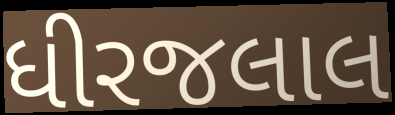
ધીરજલાલ